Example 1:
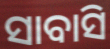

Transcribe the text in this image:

ସାବାସି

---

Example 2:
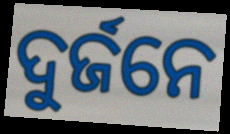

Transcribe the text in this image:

ଦୁର୍ଜନେ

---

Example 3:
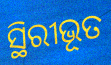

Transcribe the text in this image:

ସ୍ଥିରୀଭୂତ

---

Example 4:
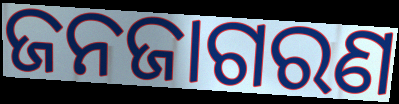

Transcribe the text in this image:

ଜନଜାଗରଣ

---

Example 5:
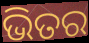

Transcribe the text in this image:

ଭିତର